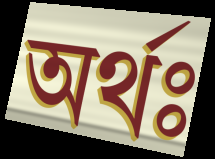
অর্থঃ